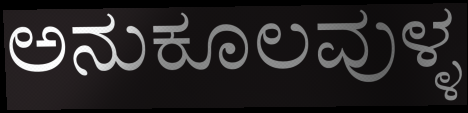
ಅನುಕೂಲವುಳ್ಳ